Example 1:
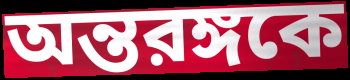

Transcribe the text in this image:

অন্তরঙ্গকে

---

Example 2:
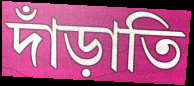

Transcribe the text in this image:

দাঁড়াতি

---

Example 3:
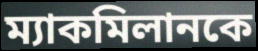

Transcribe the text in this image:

ম্যাকমিলানকে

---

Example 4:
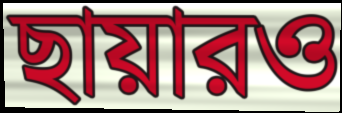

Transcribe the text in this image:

ছায়ারও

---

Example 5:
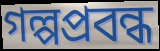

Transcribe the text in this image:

গল্পপ্রবন্ধ